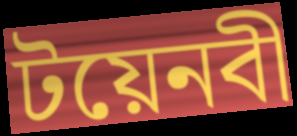
টয়েনবী